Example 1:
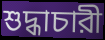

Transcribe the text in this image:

শুদ্ধাচারী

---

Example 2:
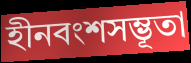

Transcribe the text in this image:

হীনবংশসম্ভূতা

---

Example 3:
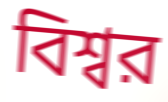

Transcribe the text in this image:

বিশ্বর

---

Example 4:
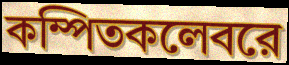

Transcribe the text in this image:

কম্পিতকলেবরে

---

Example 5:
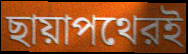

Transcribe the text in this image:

ছায়াপথেরই